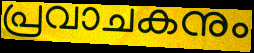
പ്രവാചകനും